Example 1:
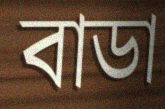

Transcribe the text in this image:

বাডা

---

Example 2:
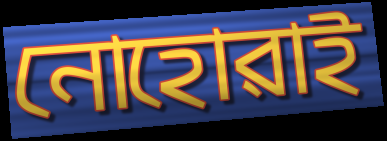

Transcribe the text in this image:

নোহোৱাই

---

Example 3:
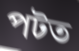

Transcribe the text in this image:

পটত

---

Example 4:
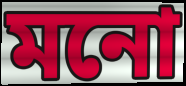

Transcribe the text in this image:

মনো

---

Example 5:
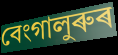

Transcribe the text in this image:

বেংগালুৰুৰ